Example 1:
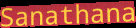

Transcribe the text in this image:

Sanathana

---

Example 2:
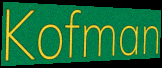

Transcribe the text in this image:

Kofman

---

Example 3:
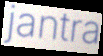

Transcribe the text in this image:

jantra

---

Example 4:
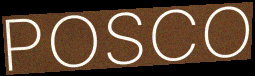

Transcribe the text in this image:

POSCO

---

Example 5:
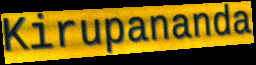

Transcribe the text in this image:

Kirupananda